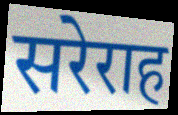
सरेराह